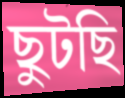
ছুটছি